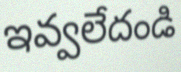
ఇవ్వలేదండి